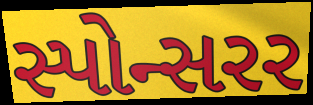
સ્પોન્સરર